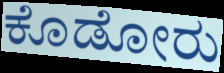
ಕೊಡೋರು